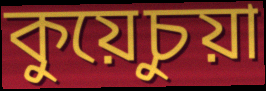
কুয়েচুয়া